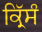
ਕ੍ਰਿੱਸੰ